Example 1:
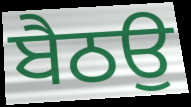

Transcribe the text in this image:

ਬੈਠਉ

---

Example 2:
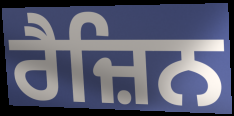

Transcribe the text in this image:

ਰੈਜ਼ਿਨ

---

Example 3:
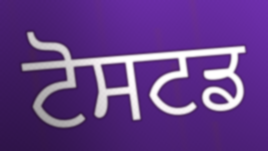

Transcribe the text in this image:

ਟੋਸਟਡ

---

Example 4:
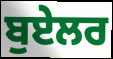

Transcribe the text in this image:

ਬੁਏਲਰ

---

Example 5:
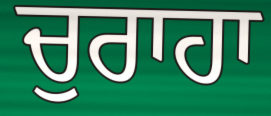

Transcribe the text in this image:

ਚੁਰਾਹਾ